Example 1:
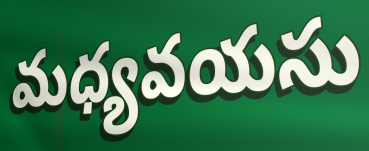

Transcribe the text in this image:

మధ్యవయసు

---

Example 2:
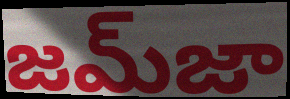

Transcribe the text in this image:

జమ్‌జా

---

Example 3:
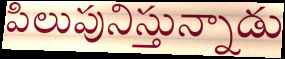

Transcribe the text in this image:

పిలుపునిస్తున్నాడు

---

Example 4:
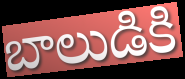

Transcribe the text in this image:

బాలుడికి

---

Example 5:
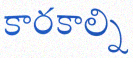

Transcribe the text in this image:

కారకాల్ని